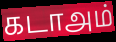
கடாஅம்